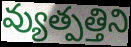
వ్యుత్పత్తిని